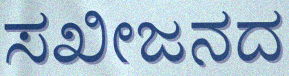
ಸಖೀಜನದ